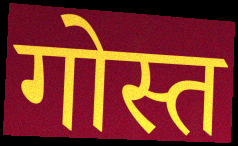
गोस्त